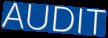
AUDIT